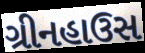
ગ્રીનહાઉસ